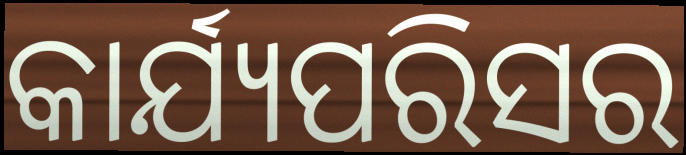
କାର୍ଯ୍ୟପରିସର